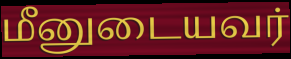
மீனுடையவர்